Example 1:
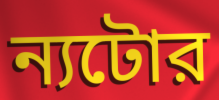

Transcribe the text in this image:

ন্যটোর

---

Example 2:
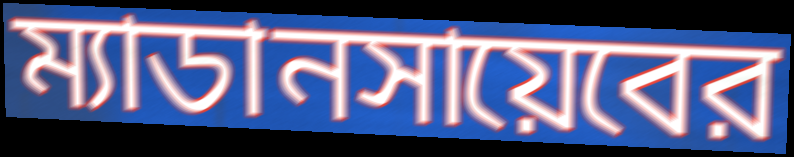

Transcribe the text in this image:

ম্যাডানসায়েবের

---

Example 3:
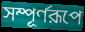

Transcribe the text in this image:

সম্পূর্ণরূপে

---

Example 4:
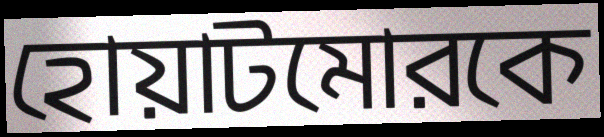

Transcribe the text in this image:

হোয়াটমোরকে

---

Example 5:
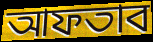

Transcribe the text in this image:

আফতাব